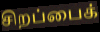
சிறப்பைக்